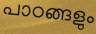
പാഠങ്ങളും